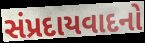
સંપ્રદાયવાદનો